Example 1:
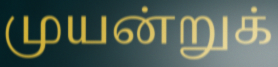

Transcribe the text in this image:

முயன்றுக்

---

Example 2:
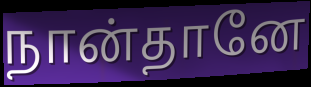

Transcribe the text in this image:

நான்தானே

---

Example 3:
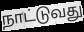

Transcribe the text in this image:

நாட்டுவது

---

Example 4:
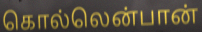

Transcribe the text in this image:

கொல்லென்பான்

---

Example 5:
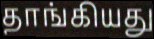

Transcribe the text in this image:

தாங்கியது